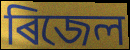
ৰিজেল